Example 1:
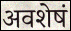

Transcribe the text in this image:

अवशेषं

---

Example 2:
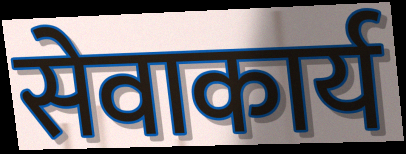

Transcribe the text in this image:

सेवाकार्य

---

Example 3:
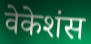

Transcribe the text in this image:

वेकेशंस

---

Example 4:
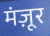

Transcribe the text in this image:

मंज़ूर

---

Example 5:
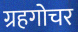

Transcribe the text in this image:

ग्रहगोचर